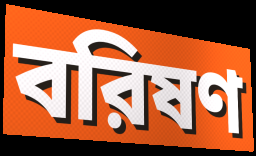
বরিষণ